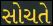
સોચતે